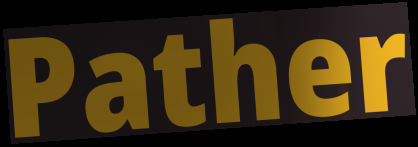
Pather